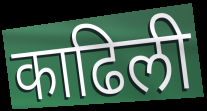
काढिली